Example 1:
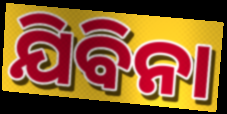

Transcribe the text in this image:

ଯିବିନା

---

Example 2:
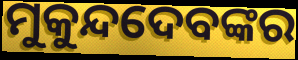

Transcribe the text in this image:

ମୁକୁନ୍ଦଦେବଙ୍କର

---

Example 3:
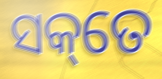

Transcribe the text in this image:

ସକ୍‌ତେ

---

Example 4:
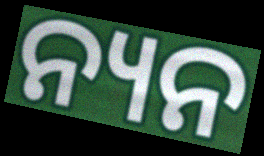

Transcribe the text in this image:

ନ୍ୟନ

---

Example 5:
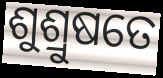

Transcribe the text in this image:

ଶୁଶ୍ରୁଷତେ